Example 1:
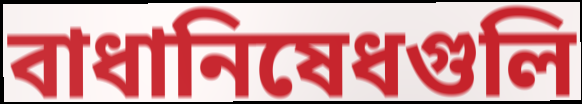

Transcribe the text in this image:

বাধানিষেধগুলি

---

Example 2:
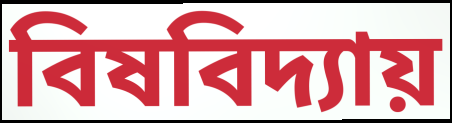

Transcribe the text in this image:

বিষবিদ্যায়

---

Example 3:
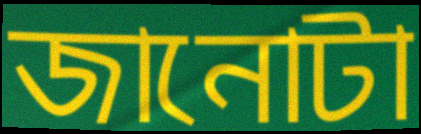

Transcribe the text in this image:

জানোটা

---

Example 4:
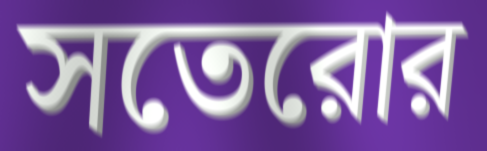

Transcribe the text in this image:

সতেরোর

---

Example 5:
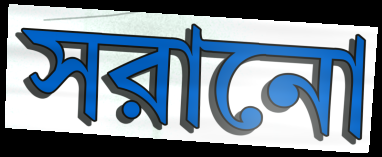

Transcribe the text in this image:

সরানো